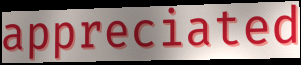
appreciated